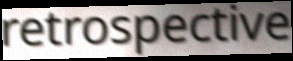
retrospective